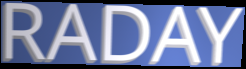
RADAY